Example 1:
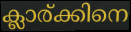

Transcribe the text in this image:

ക്ലാര്ക്കിനെ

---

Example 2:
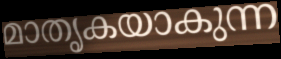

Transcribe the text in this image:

മാതൃകയാകുന്ന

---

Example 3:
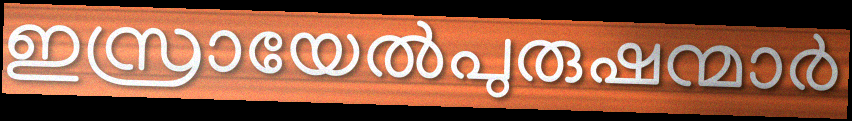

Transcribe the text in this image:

ഇസ്രായേൽപുരുഷന്മാർ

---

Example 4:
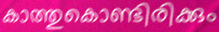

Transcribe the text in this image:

കാത്തുകൊണ്ടിരിക്കും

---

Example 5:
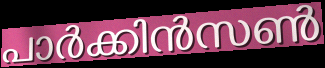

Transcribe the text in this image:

പാർക്കിൻസൺ